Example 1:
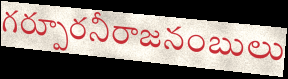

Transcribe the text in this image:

గర్పూరనీరాజనంబులు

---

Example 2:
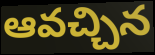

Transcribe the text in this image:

ఆవచ్చిన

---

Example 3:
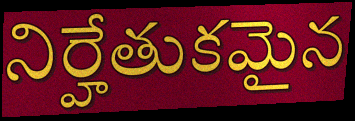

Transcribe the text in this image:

నిర్హేతుకమైన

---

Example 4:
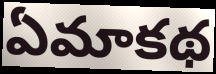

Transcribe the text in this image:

ఏమాకథ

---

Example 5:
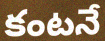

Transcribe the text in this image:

కంటనే